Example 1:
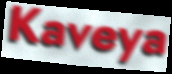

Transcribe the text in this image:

Kaveya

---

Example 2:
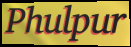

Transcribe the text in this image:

Phulpur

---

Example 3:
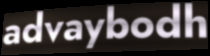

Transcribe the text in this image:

advaybodh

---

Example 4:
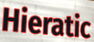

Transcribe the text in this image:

Hieratic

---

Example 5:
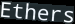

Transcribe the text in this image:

Ethers